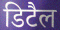
डिटैल